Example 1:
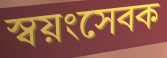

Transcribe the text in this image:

স্বয়ংসেবক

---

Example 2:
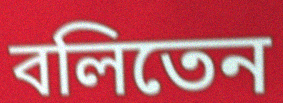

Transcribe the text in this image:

বলিতেন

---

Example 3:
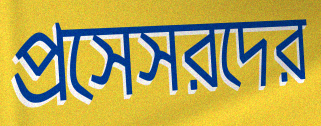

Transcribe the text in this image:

প্রসেসরদের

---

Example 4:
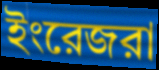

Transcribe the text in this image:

ইংরেজরা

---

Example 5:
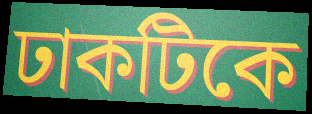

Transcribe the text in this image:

ঢাকটিকে